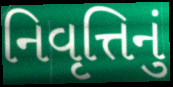
નિવૃત્તિનું